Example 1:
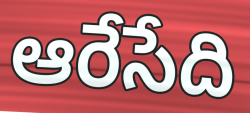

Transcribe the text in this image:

ఆరేసేది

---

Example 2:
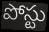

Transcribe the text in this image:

పోస్టు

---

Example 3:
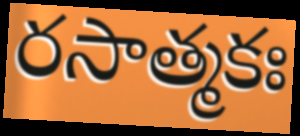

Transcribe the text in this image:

రసాత్మకః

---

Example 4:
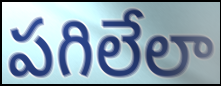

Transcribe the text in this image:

పగిలేలా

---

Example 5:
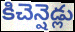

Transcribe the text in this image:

కిచెన్షెడ్లు